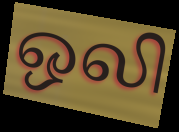
ஒலி